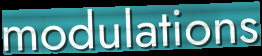
modulations